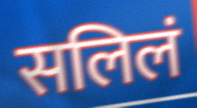
सलिलं